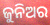
ଜୁନିଅର